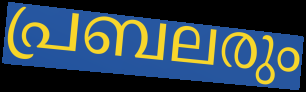
പ്രബലരും